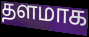
தளமாக